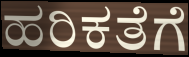
ಹರಿಕತೆಗೆ